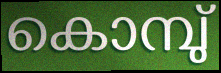
കൊമ്പു്